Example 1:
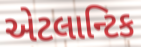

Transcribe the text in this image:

એટલાન્ટિક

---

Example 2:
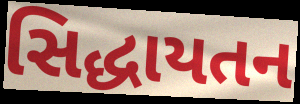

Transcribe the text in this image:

સિદ્ધાયતન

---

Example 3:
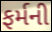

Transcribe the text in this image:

ફર્મની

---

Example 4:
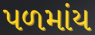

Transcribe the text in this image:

પળમાંય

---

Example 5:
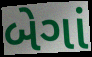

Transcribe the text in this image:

બેગાં